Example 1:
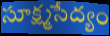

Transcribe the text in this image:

సూక్ష్మసేద్యం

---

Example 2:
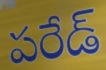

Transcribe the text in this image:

పరేడ్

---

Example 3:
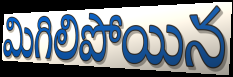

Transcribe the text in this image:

మిగిలిపోయిన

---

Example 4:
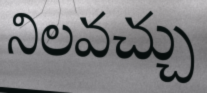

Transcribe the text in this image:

నిలవచ్చు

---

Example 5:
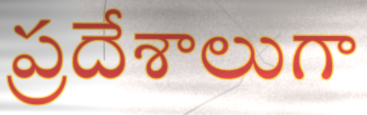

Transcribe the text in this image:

ప్రదేశాలుగా